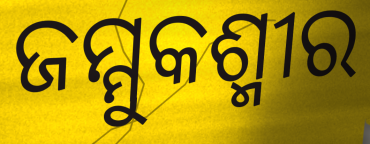
ଜମ୍ମୁକଶ୍ମୀର